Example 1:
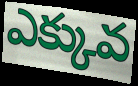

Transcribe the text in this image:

ఎక్కువ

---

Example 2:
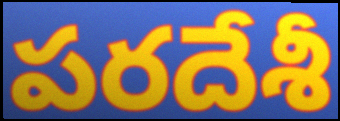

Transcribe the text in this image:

పరదేశీ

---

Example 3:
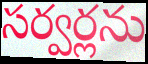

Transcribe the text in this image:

సర్వర్లను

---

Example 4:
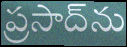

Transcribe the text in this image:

ప్రసాద్‌ను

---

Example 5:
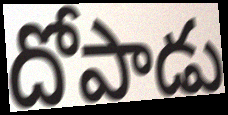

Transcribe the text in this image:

దోపాడు